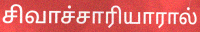
சிவாச்சாரியாரால்